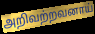
அறிவற்றவனாய்